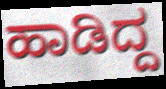
ಹಾಡಿದ್ದ